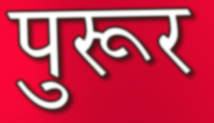
पुरूर